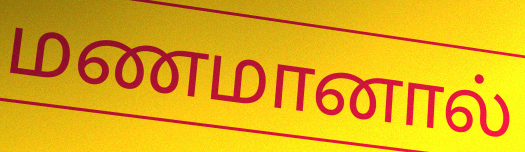
மணமானால்